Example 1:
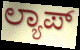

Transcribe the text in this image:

ಲ್ಯಾಪ್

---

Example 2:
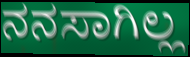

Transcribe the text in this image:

ನನಸಾಗಿಲ್ಲ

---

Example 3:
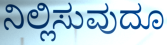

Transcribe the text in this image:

ನಿಲ್ಲಿಸುವುದೂ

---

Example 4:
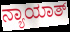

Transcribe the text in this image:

ನ್ಯಾಯಾತ್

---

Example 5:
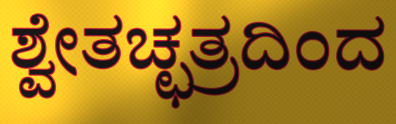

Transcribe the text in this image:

ಶ್ವೇತಚ್ಛತ್ರದಿಂದ